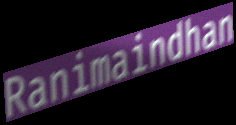
Ranimaindhan